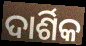
ଦାର୍ଶିକ